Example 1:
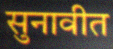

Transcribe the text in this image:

सुनावीत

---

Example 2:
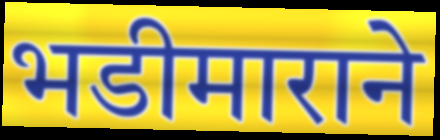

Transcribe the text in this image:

भडीमाराने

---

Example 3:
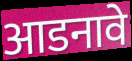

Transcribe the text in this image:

आडनावे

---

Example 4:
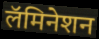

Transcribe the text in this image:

लॅमिनेशन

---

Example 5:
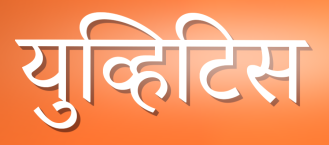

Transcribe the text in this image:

युव्हिटिस